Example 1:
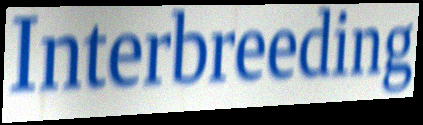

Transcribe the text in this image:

Interbreeding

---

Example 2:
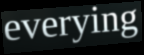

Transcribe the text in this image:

everying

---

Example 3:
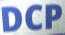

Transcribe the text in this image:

DCP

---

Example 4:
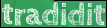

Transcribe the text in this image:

tradidit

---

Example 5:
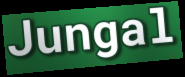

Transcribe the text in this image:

Jungal